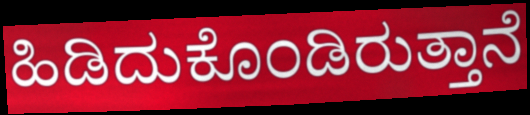
ಹಿಡಿದುಕೊಂಡಿರುತ್ತಾನೆ